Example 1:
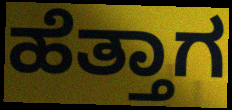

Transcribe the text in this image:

ಹೆತ್ತಾಗ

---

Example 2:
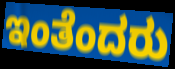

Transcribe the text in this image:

ಇಂತೆಂದರು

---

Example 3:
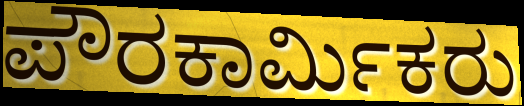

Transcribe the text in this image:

ಪೌರಕಾರ್ಮಿಕರು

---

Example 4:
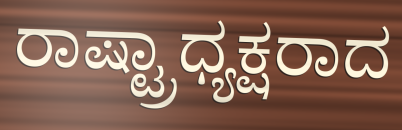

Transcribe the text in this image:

ರಾಷ್ಟ್ರಾಧ್ಯಕ್ಷರಾದ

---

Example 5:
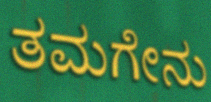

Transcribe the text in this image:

ತಮಗೇನು